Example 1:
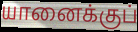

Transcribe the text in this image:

யானைக்குப்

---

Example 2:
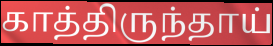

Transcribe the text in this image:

காத்திருந்தாய்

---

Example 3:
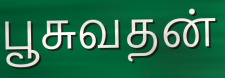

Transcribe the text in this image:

பூசுவதன்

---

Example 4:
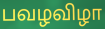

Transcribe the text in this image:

பவழவிழா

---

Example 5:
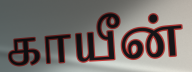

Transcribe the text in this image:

காயீன்